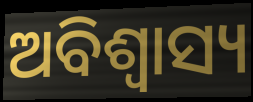
ଅବିଶ୍ୱାସ୍ୟ